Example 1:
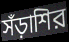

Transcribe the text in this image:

সঁড়াশির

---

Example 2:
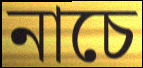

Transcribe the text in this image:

নাচে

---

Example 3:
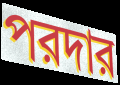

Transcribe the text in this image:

পরদার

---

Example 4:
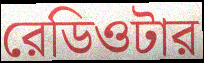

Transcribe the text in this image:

রেডিওটার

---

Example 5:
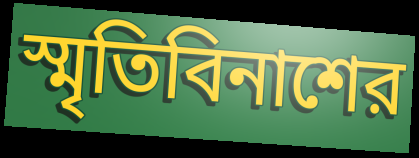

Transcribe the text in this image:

স্মৃতিবিনাশের